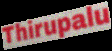
Thirupalu